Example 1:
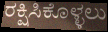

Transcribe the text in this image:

ರಕ್ಷಿಸಿಕೊಳ್ಳಲು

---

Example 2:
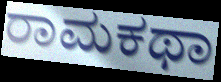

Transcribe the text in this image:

ರಾಮಕಥಾ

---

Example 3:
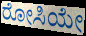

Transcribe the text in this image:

ರೋಸಿಯೇ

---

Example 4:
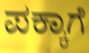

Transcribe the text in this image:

ಪಕ್ಕಾಗೆ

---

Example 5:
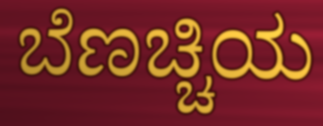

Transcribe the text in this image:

ಬೆಣಚ್ಚಿಯ